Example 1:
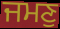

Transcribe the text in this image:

ਜਮਣੁ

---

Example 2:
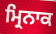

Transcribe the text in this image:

ਮ੍ਰਿਨਾਕ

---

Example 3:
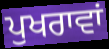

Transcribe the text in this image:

ਪੁਖਰਾਵਾਂ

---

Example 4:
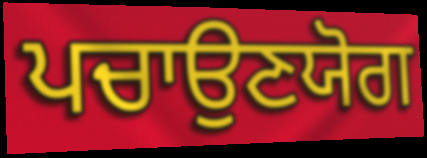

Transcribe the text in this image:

ਪਚਾਉਣਯੋਗ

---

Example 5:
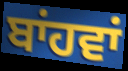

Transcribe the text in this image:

ਬਾਂਹਵਾਂ